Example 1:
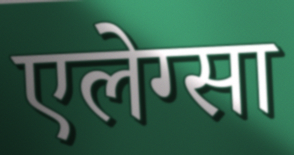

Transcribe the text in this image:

एलेग्सा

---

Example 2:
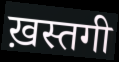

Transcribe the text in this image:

ख़स्तगी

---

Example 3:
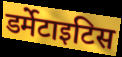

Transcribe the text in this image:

डर्मेटाइटिस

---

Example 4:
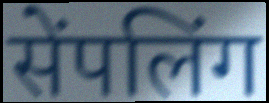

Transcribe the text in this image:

सेंपलिंग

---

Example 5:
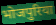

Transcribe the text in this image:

भोजपुरिया